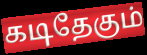
கடிதேகும்